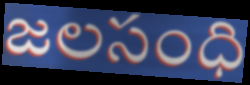
జలసంధి